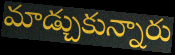
మాడ్చుకున్నారు